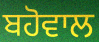
ਬਹੋਵਾਲ